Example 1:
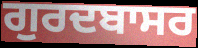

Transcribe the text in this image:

ਗੁਰਦਬਾਸਰ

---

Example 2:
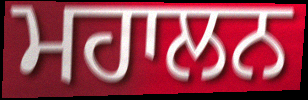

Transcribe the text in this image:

ਮਹਾਲਨ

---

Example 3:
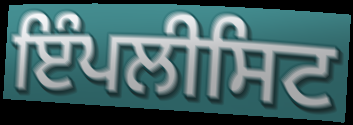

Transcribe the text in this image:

ਇੰਪਲੀਸਿਟ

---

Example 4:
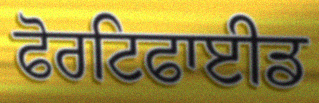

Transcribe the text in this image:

ਫੋਰਟਿਫਾਈਡ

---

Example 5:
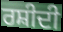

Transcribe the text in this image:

ਰਸ਼ੀਦੀ